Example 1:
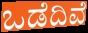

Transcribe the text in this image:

ಒಡೆದಿವೆ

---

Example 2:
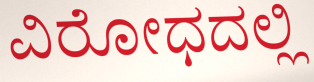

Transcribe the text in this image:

ವಿರೋಧದಲ್ಲಿ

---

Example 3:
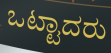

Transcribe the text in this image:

ಒಟ್ಟಾದರು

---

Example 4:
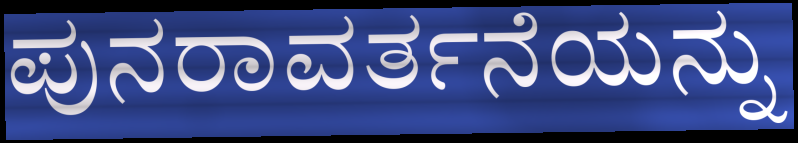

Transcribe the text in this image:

ಪುನರಾವರ್ತನೆಯನ್ನು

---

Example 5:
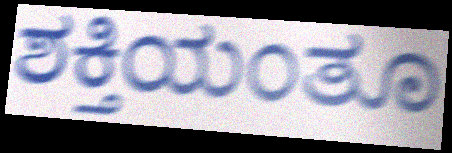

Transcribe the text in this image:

ಶಕ್ತಿಯಂತೂ